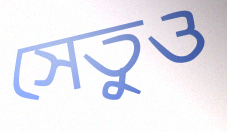
সেতুও